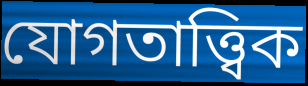
যোগতাত্ত্বিক